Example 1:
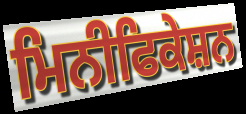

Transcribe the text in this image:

ਮਿਨੀਫਿਕੇਸ਼ਨ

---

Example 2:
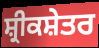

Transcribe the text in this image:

ਸ਼੍ਰੀਕਸ਼ੇਤਰ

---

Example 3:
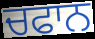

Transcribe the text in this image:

ਚਫਾਨ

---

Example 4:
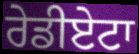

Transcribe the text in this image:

ਰੇਡੀਏਟਾ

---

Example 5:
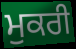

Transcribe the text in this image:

ਮੁਕਰੀ